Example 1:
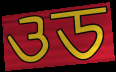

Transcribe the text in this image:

ওড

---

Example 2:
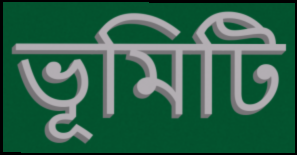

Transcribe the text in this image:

ভূমিটি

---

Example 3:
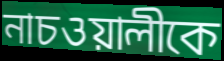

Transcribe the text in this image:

নাচওয়ালীকে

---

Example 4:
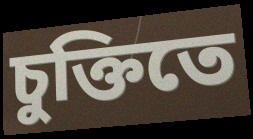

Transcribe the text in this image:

চুক্তিতে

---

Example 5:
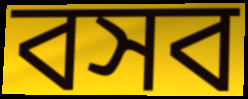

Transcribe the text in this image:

বসব